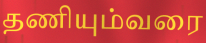
தணியும்வரை